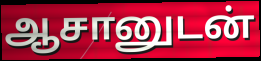
ஆசானுடன்